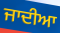
ਜਾਦੀਆ